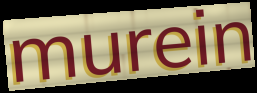
murein